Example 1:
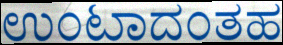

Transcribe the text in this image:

ಉಂಟಾದಂತಹ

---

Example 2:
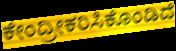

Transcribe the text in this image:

ಕೇಂದ್ರೀಕರಿಸಿಕೊಂಡಿದೆ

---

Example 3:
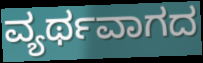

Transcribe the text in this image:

ವ್ಯರ್ಥವಾಗದ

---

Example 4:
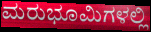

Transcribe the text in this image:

ಮರುಭೂಮಿಗಳಲ್ಲಿ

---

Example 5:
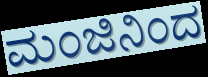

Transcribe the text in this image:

ಮಂಜಿನಿಂದ